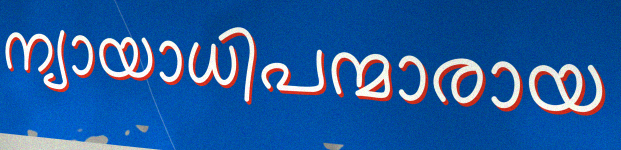
ന്യായാധിപന്മാരായ